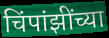
चिंपांझींच्या